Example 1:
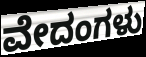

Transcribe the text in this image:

ವೇದಂಗಳು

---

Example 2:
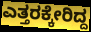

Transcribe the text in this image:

ಎತ್ತರಕ್ಕೇರಿದ್ದ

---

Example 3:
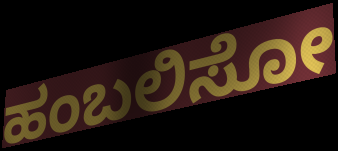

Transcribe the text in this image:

ಹಂಬಲಿಸೋ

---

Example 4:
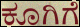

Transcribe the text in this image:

ಕೂಗಿಗೆ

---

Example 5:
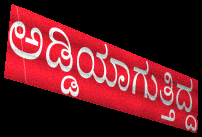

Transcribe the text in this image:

ಅಡ್ಡಿಯಾಗುತ್ತಿದ್ದ